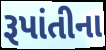
રૂપાંતીના